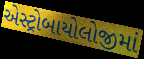
એસ્ટ્રોબાયોલોજીમાં